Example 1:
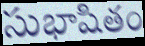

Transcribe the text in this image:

సుభాషితం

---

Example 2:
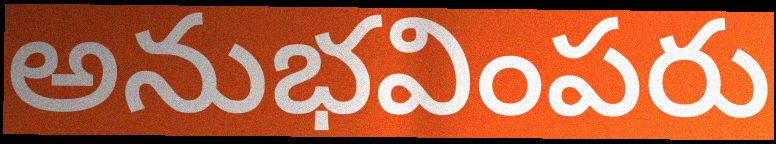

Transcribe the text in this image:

అనుభవింపరు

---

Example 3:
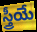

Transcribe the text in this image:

స్త్రీయే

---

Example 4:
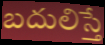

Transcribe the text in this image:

బదులిస్తే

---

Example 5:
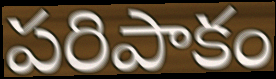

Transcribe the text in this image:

పరిపాకం